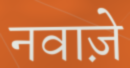
नवाज़े